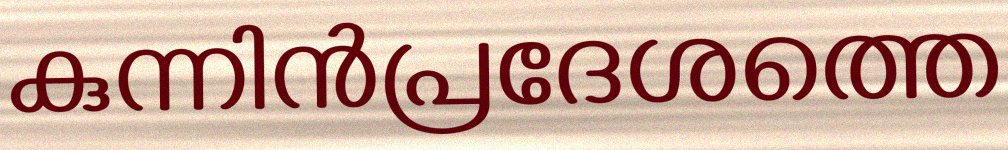
കുന്നിൻപ്രദേശത്തെ